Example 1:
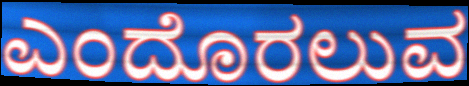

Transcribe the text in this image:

ಎಂದೊರಲುವ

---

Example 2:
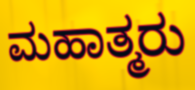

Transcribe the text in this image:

ಮಹಾತ್ಮರು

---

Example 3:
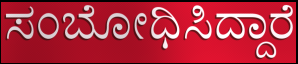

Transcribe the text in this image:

ಸಂಬೋಧಿಸಿದ್ದಾರೆ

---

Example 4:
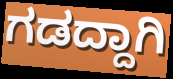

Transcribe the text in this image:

ಗಡದ್ದಾಗಿ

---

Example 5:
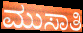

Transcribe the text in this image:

ಮುಸಾತಿ